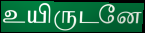
உயிருடனே